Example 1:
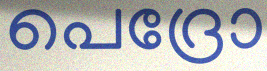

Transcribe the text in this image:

പെദ്രോ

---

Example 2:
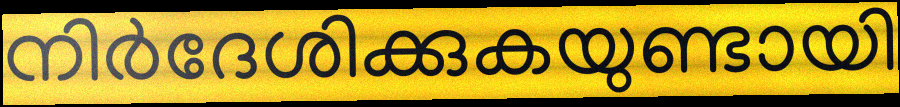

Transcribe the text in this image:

നിർദേശിക്കുകയുണ്ടായി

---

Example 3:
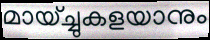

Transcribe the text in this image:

മായ്ച്ചുകളയാനും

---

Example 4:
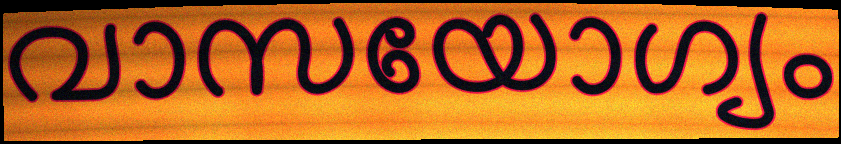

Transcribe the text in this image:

വാസയോഗ്യം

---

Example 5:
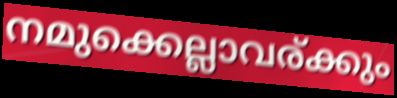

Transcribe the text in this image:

നമുക്കെല്ലാവര്ക്കും